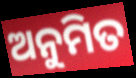
ଅନୁମିତ